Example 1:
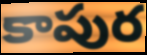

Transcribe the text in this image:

కాపుర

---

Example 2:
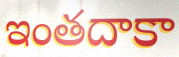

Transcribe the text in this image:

ఇంతదాకా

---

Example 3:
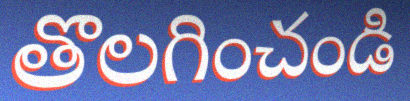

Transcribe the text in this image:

తొలగించండి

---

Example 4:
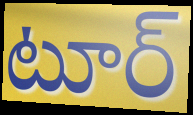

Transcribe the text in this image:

టూర్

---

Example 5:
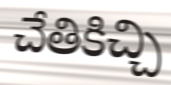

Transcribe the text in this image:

చేతికిచ్చి